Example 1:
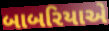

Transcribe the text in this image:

બાબરિયાએ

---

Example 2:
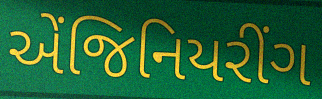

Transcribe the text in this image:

એંજિનિયરીંગ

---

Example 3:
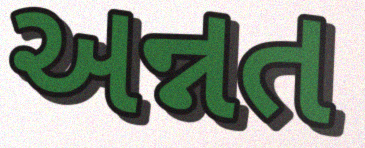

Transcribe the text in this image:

અન્નત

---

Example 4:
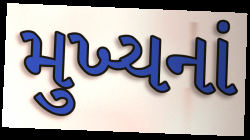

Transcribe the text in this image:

મુખ્યનાં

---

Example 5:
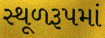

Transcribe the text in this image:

સ્થૂળરૂપમાં